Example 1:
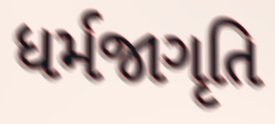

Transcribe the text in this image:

ધર્મજાગૃતિ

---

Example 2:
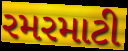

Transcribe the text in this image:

રમરમાટી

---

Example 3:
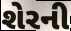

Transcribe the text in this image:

શેરની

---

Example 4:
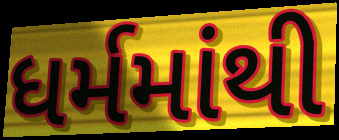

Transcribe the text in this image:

ધર્મમાંથી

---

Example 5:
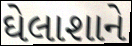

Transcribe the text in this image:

ઘેલાશાને